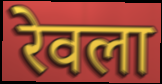
रेवला